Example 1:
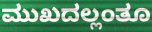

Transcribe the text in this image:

ಮುಖದಲ್ಲಂತೂ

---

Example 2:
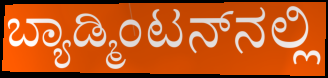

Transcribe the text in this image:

ಬ್ಯಾಡ್ಮಿಂಟನ್‌ನಲ್ಲಿ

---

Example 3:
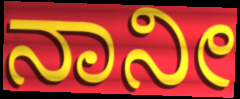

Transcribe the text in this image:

ನಾನೀ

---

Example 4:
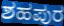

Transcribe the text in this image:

ಶಹಪುರ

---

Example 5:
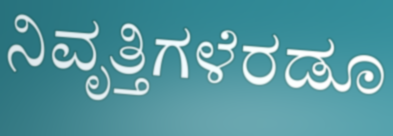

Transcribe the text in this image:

ನಿವೃತ್ತಿಗಳೆರಡೂ